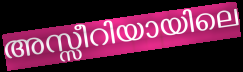
അസ്സീറിയായിലെ